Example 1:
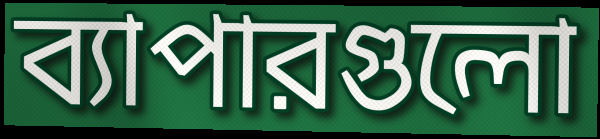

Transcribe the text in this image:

ব্যাপারগুলো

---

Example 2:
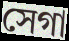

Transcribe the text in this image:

সেগা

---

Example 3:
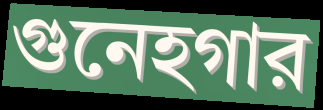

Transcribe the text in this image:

গুনেহগার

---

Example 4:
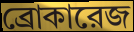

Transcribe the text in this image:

ব্রোকারেজ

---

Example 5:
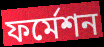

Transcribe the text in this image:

ফর্মেশন